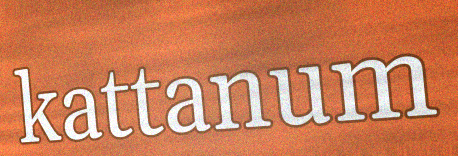
kattanum